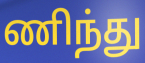
ணிந்து